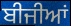
ਬੀਜੀਆਂ